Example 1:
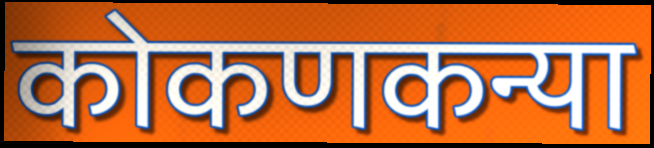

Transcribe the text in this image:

कोकणकन्या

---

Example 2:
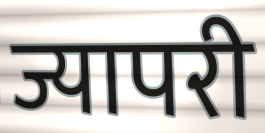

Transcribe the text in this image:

ज्यापरी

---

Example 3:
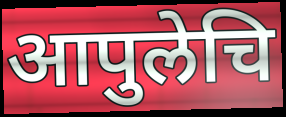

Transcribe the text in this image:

आपुलेचि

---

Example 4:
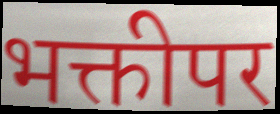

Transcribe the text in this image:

भक्तीपर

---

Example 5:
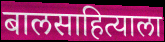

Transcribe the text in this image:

बालसाहित्याला